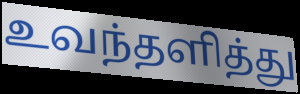
உவந்தளித்து